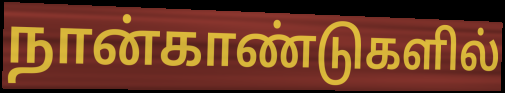
நான்காண்டுகளில்